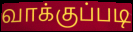
வாக்குப்படி